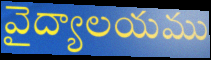
వైద్యాలయము